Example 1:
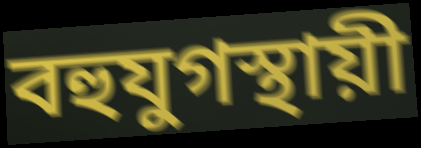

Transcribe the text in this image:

বহুযুগস্থায়ী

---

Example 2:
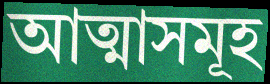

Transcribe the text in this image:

আত্মাসমূহ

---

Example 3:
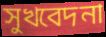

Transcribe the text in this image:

সুখবেদনা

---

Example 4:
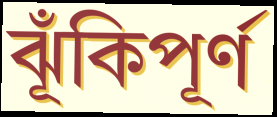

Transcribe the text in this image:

ঝূঁকিপূর্ণ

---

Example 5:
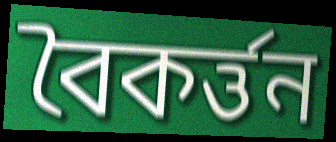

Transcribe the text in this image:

বৈকর্ত্তন